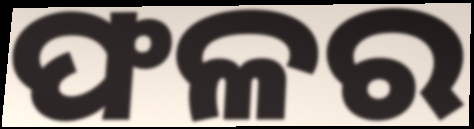
ଫଳର